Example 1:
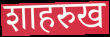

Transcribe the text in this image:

शाहरुख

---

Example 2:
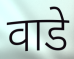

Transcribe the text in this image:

वाडे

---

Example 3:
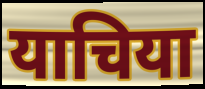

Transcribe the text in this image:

याचिया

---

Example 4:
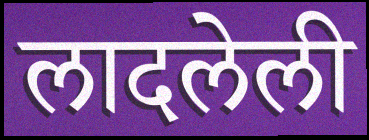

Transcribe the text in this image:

लादलेली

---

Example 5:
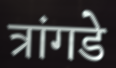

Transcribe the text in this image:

त्रांगडे